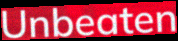
Unbeaten